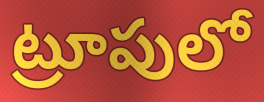
ట్రూపులో